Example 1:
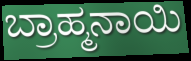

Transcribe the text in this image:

ಬ್ರಾಹ್ಮನಾಯಿ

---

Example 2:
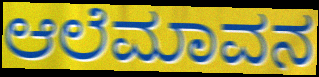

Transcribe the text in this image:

ಆಲೆಮಾವನ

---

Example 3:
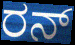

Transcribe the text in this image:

ರನ್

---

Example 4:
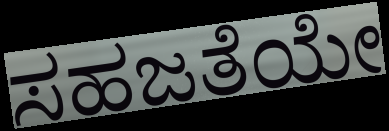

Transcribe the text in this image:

ಸಹಜತೆಯೇ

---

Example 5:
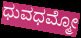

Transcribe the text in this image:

ಧುವಧಮ್ಮೋ